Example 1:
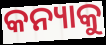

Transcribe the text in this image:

କନ୍ୟାକୁ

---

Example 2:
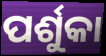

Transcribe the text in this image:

ପର୍ଶୁକା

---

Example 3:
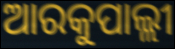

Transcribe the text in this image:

ଆରକୁପାଲ୍ଲୀ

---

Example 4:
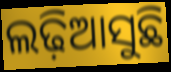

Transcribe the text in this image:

ଲଢ଼ିଆସୁଛି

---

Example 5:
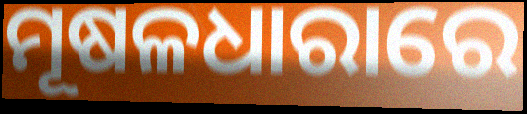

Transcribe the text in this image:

ମୂଷଳଧାରାରେ